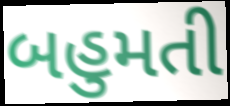
બહુમતી